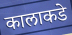
कालाकडे